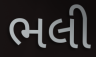
ભલી